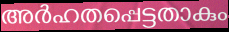
അർഹതപ്പെട്ടതാകും